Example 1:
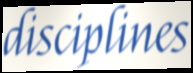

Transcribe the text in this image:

disciplines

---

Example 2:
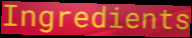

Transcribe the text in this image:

Ingredients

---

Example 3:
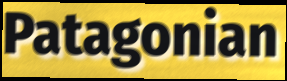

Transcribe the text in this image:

Patagonian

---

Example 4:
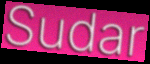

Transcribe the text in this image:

Sudar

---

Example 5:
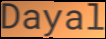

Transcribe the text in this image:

Dayal